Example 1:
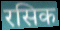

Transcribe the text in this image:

रसिक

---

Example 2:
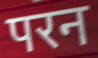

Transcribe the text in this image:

परन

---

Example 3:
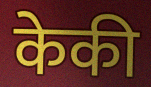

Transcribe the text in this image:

केकी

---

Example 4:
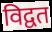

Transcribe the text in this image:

विद्वत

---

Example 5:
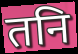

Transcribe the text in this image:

तनि